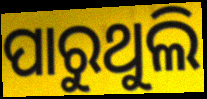
ପାରୁଥୁଲି